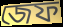
জেফ